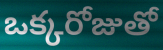
ఒక్కరోజుతో